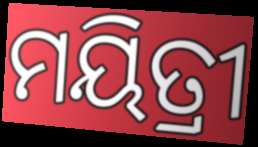
ମୟିତ୍ରୀ